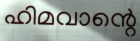
ഹിമവാന്റെ